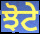
ਝੋਟੇ